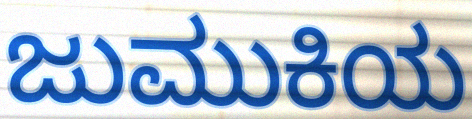
ಜುಮುಕಿಯ